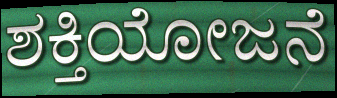
ಶಕ್ತಿಯೋಜನೆ